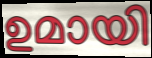
ഉമായി